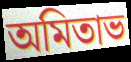
অমিতাভ